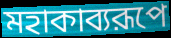
মহাকাব্যরূপে